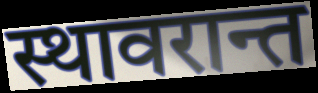
स्थावरान्त